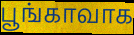
பூங்காவாக